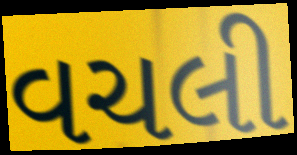
વચલી